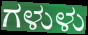
ಗಳುಳು